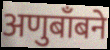
अणुबाँबने